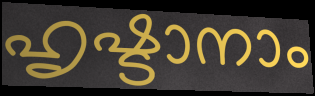
ഹൃഷ്ടാനാം